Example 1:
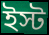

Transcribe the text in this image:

ইস্ট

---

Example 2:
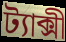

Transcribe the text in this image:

ট্যাক্সী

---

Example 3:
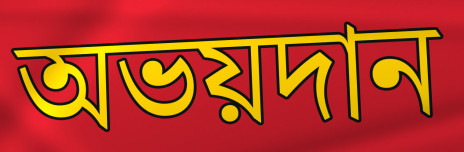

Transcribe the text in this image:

অভয়দান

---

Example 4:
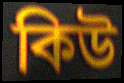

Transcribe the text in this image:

কিউ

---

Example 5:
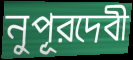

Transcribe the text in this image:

নুপূরদেবী